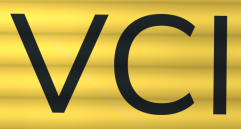
VCI